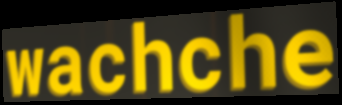
wachche